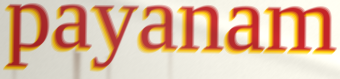
payanam